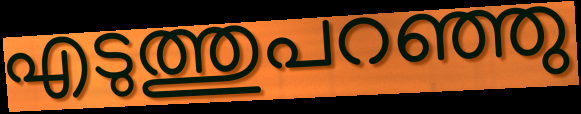
എടുത്തുപറഞ്ഞു